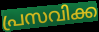
പ്രസവിക്ക